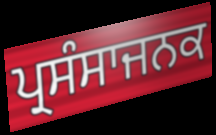
ਪ੍ਰਸੰਸਾਜਨਕ